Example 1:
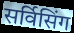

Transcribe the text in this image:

सर्विसिंग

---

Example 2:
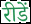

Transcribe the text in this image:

रीडें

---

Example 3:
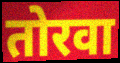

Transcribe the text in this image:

तोरवा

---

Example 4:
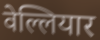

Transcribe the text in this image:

वेल्लियार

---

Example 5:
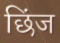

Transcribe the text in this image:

छिंज